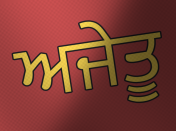
ਅਜੇਤੂ